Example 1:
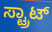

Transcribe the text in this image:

ಸ್ಟ್ರಾಟ್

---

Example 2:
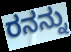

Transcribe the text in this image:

ರನನ್ನು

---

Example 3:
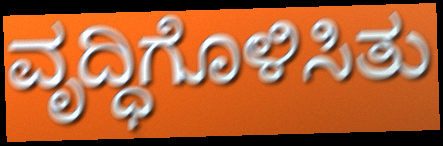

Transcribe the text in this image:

ವೃದ್ಧಿಗೊಳಿಸಿತು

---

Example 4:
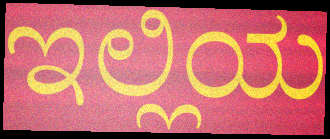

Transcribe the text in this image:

ಇಲ್ಲಿಯ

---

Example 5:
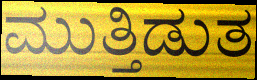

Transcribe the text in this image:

ಮುತ್ತಿಡುತ